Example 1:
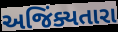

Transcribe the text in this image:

અજિંક્યતારા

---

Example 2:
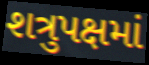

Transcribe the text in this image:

શત્રુપક્ષમાં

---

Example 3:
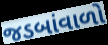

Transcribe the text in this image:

જડબાંવાળો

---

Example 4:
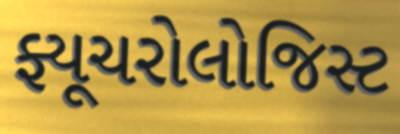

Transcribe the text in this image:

ફ્યૂચરોલોજિસ્ટ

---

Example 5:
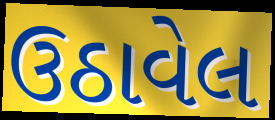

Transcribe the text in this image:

ઉઠાવેલ